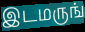
இடமருங்